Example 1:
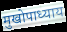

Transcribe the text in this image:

मुखोपाध्याय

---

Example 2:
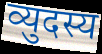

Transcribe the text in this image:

व्युदस्य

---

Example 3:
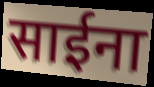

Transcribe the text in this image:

साईना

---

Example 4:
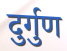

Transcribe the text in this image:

दुर्गुण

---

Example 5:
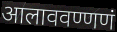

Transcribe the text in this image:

आलाववण्णणं